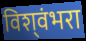
विश्वंभरा